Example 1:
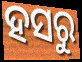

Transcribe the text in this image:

ହସରୁ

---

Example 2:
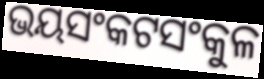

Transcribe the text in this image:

ଭୟସଂକଟସଂକୁଳ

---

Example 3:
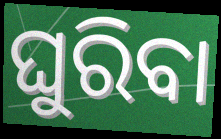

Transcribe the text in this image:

ଘୁରିବା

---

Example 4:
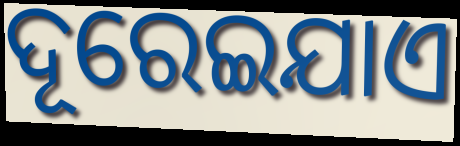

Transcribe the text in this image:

ଦୂରେଇଯାଏ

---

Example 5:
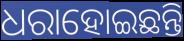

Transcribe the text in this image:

ଧରାହୋଇଛନ୍ତି